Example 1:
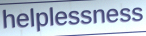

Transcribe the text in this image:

helplessness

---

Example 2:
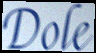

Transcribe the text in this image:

Dole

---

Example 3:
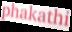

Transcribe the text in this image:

phakathi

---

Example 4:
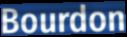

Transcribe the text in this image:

Bourdon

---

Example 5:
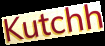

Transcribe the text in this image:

Kutchh